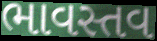
ભાવસ્તવ